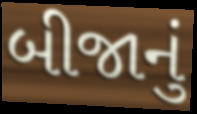
બીજાનું